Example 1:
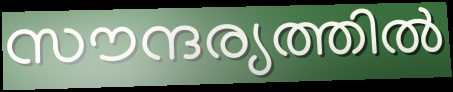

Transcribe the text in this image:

സൗന്ദര്യത്തിൽ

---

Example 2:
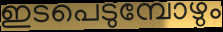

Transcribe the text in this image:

ഇടപെടുമ്പോഴും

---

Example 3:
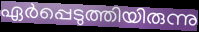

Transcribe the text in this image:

ഏർപ്പെടുത്തിയിരുന്നു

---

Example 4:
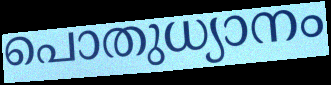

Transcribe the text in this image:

പൊതുധ്യാനം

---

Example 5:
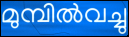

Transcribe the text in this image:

മുമ്പിൽവച്ചു